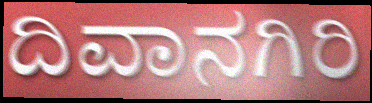
ದಿವಾನಗಿರಿ